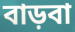
বাড়বা